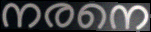
നരനെ